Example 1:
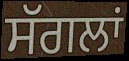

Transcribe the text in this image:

ਸੱਗਲਾਂ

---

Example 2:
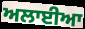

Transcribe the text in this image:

ਅਲਾਈਆ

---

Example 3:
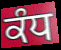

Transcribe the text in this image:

ਕੰਧ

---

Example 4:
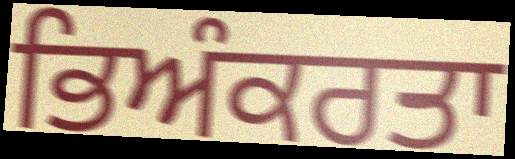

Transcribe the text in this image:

ਭਿਅੰਕਰਤਾ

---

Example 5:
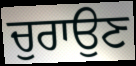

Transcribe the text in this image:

ਚੁਰਾਉਣ